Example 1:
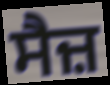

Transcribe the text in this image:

ਸੈਜ਼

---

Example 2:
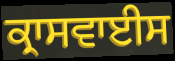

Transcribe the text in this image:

ਕ੍ਰਾਸਵਾਈਸ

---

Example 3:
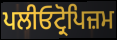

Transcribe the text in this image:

ਪਲੀਓਟ੍ਰੋਪਿਜ਼ਮ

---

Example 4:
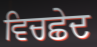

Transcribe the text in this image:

ਵਿਚਛੇਦ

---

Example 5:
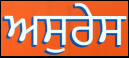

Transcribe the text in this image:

ਅਸੁਰੇਸ